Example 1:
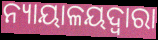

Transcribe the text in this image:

ନ୍ୟାୟାଳୟଦ୍ୱାରା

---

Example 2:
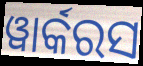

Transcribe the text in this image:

ୱାର୍କରସ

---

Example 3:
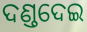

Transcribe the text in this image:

ଦଣ୍ଡଦେଇ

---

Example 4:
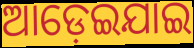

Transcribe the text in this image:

ଆଡ଼େଇଯାଇ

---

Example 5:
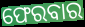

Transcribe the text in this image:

ଫେରବାର